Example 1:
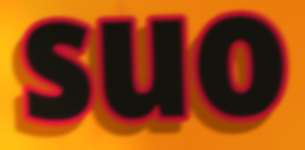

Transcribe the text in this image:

suo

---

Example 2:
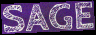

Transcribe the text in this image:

SAGE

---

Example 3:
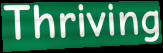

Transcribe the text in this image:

Thriving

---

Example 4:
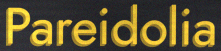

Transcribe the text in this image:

Pareidolia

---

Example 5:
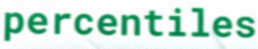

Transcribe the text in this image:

percentiles